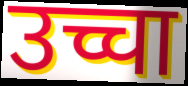
उच्चा